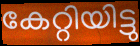
കേറ്റിയിട്ടു